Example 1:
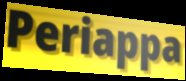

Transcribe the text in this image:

Periappa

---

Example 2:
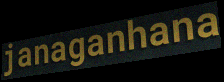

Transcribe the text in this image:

janaganhana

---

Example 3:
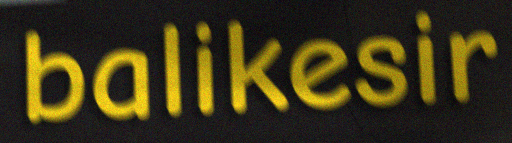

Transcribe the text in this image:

balikesir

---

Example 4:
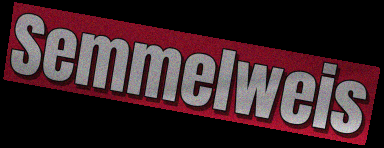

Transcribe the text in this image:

Semmelweis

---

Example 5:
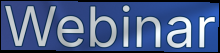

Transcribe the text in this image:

Webinar